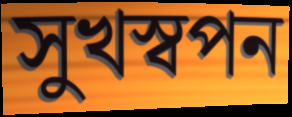
সুখস্বপন